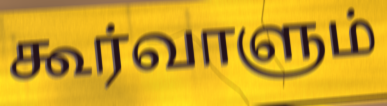
கூர்வாளும்